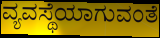
ವ್ಯವಸ್ಥೆಯಾಗುವಂತೆ